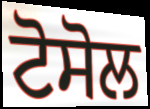
ਟੋਸੋਲ